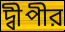
দ্বীপীর